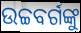
ଉଚ୍ଚବର୍ଗଙ୍କୁ